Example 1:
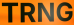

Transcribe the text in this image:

TRNG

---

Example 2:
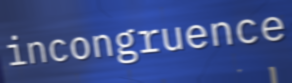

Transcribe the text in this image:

incongruence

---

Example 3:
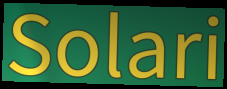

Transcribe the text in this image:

Solari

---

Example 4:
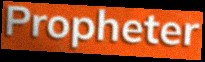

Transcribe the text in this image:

Propheter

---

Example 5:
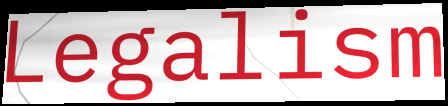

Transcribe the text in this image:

Legalism